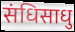
संधिसाधु